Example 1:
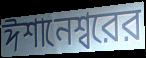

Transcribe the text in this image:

ঈশানেশ্বরের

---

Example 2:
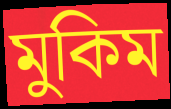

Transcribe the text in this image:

মুকিম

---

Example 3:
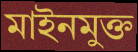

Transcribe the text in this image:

মাইনমুক্ত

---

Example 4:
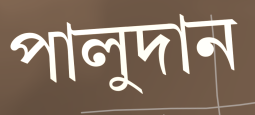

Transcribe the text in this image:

পালুদান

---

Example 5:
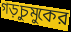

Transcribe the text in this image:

গড়চুমুকের